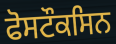
ਫੋਸਟੌਕਸਿਨ